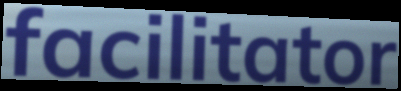
facilitator